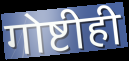
गोष्टीही